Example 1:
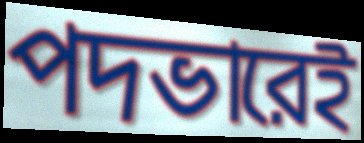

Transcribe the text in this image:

পদভারেই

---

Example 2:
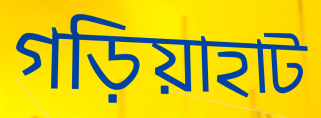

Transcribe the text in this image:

গড়িয়াহাট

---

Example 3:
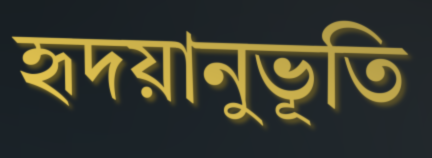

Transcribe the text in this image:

হৃদয়ানুভূতি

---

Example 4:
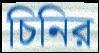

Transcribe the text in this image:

চিনির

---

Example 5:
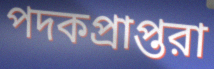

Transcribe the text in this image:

পদকপ্রাপ্তরা